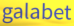
galabet